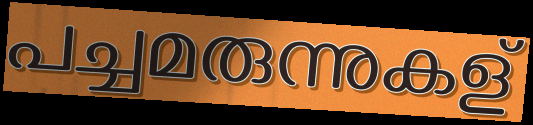
പച്ചമരുന്നുകള്